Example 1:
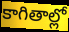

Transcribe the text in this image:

కాగితాల్లో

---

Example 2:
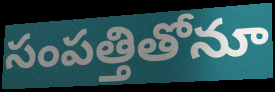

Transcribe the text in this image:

సంపత్తితోనూ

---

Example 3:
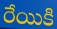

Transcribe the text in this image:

రేయికి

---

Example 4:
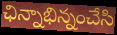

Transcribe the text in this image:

ఛిన్నాభిన్నంచేసి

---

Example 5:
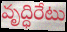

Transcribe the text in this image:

వృద్ధిరేటు